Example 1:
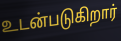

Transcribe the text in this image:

உடன்படுகிறார்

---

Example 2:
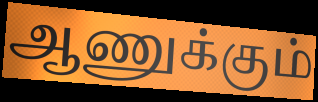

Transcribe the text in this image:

ஆணுக்கும்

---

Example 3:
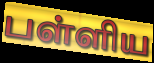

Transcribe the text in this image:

பள்ளிய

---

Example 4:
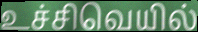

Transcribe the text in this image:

உச்சிவெயில்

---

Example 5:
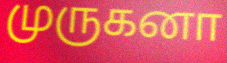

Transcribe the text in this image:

முருகனா